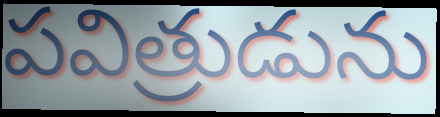
పవిత్రుడును